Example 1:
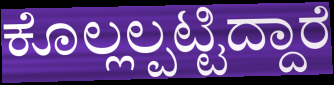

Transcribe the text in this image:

ಕೊಲ್ಲಲ್ಪಟ್ಟಿದ್ದಾರೆ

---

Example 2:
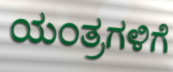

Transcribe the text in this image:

ಯಂತ್ರಗಳಿಗೆ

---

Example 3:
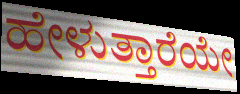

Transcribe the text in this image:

ಹೇಳುತ್ತಾರೆಯೇ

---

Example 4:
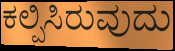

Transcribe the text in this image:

ಕಲ್ಪಿಸಿರುವುದು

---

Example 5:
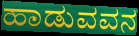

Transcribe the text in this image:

ಹಾಡುವವನ